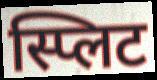
स्प्लिट